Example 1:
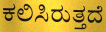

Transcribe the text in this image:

ಕಲಿಸಿರುತ್ತದೆ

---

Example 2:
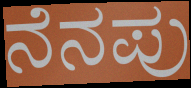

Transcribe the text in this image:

ನೆನಪು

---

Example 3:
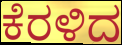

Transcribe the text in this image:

ಕೆರಳಿದ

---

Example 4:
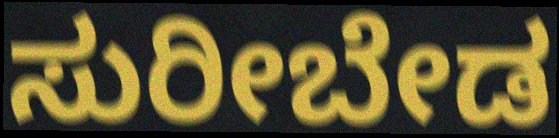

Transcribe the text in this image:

ಸುರೀಬೇಡ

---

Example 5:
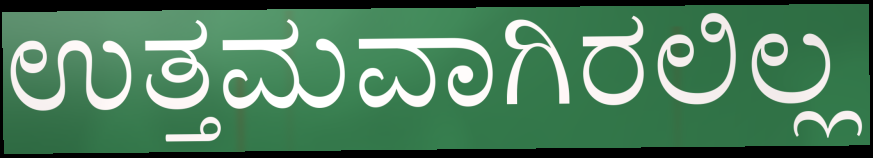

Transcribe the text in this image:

ಉತ್ತಮವಾಗಿರಲಿಲ್ಲ